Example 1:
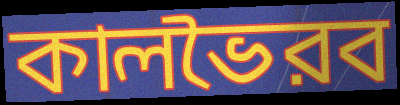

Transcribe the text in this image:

কালভৈরব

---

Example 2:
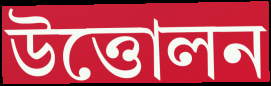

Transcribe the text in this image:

উত্তোলন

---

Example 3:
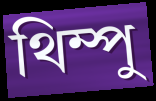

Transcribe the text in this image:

থিম্পু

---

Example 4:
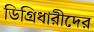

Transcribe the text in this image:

ডিগ্রিধারীদের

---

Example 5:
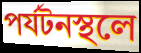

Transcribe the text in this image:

পর্যটনস্থলে